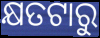
କ୍ଷତଟାରୁ